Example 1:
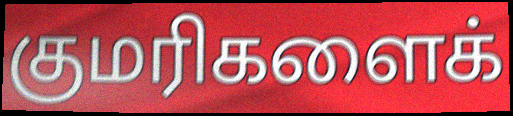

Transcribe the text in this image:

குமரிகளைக்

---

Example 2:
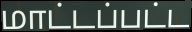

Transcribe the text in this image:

மாட்டப்பட்ட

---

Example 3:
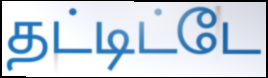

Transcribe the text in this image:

தட்டிட்டே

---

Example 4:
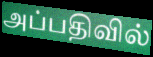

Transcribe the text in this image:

அப்பதிவில்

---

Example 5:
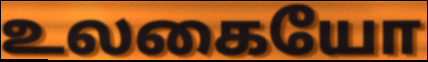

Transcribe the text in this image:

உலகையோ